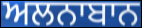
ਅਲਨਾਬਾਨ